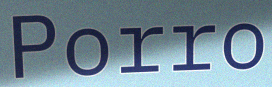
Porro